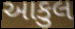
આકુલ